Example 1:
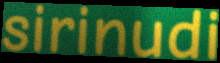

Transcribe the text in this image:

sirinudi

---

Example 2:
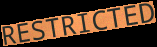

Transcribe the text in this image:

RESTRICTED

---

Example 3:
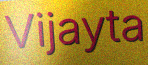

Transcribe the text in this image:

Vijayta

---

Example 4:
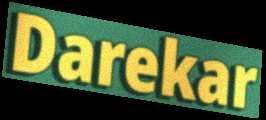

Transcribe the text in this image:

Darekar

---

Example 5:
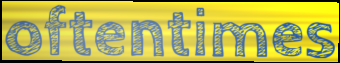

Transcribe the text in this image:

oftentimes